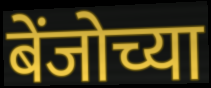
बेंजोच्या